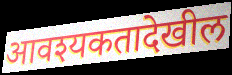
आवश्यकतादेखील